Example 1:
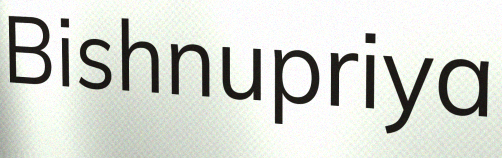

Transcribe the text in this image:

Bishnupriya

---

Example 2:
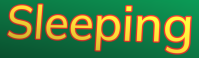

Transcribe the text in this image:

Sleeping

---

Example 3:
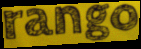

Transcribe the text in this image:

rango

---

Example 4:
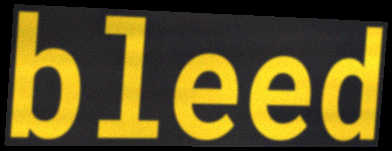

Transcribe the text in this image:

bleed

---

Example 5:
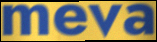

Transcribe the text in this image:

meva